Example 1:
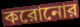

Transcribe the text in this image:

করোনোর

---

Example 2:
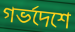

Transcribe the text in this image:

গর্ভদেশে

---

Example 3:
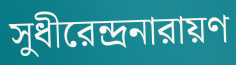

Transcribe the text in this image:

সুধীরেন্দ্রনারায়ণ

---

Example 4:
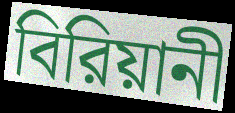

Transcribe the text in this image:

বিরিয়ানী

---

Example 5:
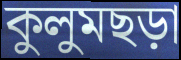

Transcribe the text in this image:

কুলুমছড়া